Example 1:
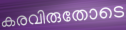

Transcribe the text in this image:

കരവിരുതോടെ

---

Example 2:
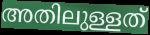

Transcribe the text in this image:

അതിലുള്ളത്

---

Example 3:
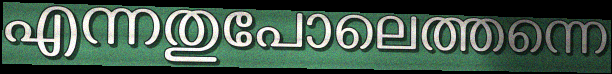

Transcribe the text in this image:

എന്നതുപോലെത്തന്നെ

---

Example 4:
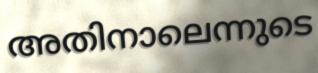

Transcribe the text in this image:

അതിനാലെന്നുടെ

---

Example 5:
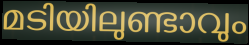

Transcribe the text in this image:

മടിയിലുണ്ടാവും